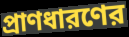
প্রাণধারণের